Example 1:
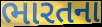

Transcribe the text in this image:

ભારતના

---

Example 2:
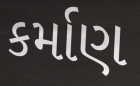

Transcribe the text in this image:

કર્માણ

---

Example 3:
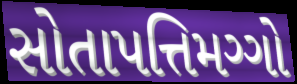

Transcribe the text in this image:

સોતાપત્તિમગ્ગો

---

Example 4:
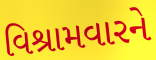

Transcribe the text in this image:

વિશ્રામવારને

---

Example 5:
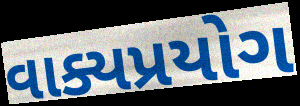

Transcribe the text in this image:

વાક્યપ્રયોગ